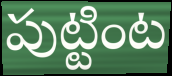
పుట్టింట